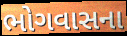
ભોગવાસના